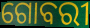
ଗୋବରୀ